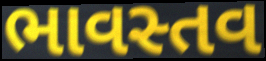
ભાવસ્તવ